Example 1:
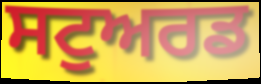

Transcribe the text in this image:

ਸਟੁਅਰਡ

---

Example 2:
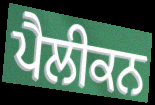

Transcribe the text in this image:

ਪੈਲੀਕਨ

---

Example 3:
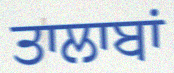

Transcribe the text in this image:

ਤਾਲਾਬਾਂ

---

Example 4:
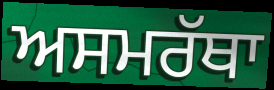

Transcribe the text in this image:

ਅਸਮਰੱਥਾ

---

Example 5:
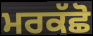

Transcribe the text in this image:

ਮਰਕੱਛੋ